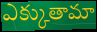
ఎక్కుతామా